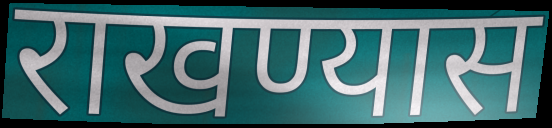
राखण्यास